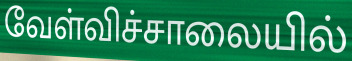
வேள்விச்சாலையில்